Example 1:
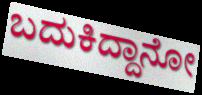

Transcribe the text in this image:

ಬದುಕಿದ್ದಾನೋ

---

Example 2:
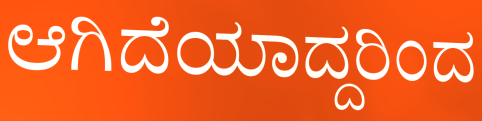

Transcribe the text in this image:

ಆಗಿದೆಯಾದ್ದರಿಂದ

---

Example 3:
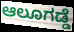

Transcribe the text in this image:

ಆಲೂಗಡ್ಡೆ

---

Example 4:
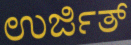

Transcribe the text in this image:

ಉರ್ಜಿತ್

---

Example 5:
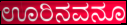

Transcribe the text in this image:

ಊರಿನವನೂ